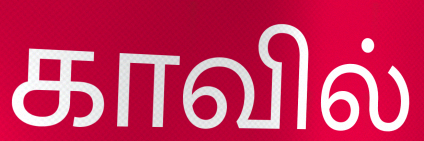
காவில்